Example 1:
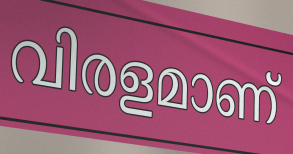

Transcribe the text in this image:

വിരളമാണ്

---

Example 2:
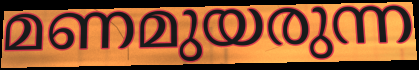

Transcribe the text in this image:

മണമുയരുന്ന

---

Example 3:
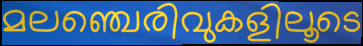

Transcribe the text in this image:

മലഞ്ചെരിവുകളിലൂടെ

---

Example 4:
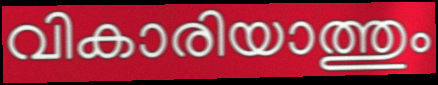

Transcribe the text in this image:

വികാരിയാത്തും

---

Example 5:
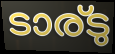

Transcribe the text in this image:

ടാര്ടു